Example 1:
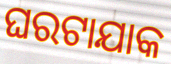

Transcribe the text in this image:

ଘରଟାଯାକ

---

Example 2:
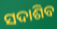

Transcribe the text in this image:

ସଦାଶିବ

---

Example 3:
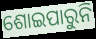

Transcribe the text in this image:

ଶୋଇପାରୁନି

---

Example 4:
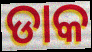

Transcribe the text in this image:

ଡାକ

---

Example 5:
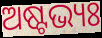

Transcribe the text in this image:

ଅଷ୍ଟଭ୍ୟଃ